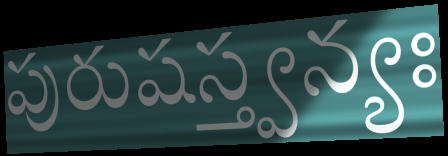
పురుషస్త్వన్యః